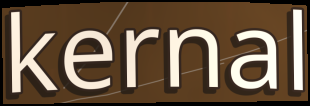
kernal